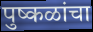
पुष्कळांचा